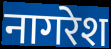
नागरेश